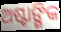
ଅଷ୍ଟାଙ୍ଗିକ